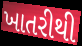
ખાતરીથી